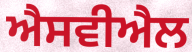
ਐਸਵੀਐਲ